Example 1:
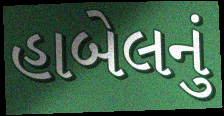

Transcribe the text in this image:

હાબેલનું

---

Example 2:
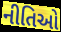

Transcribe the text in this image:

નીતિઓ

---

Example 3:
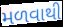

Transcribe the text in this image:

મળવાથી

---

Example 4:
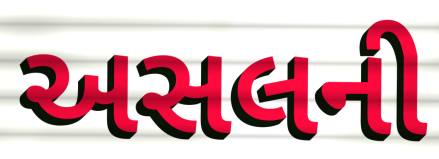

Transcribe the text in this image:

અસલની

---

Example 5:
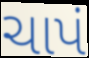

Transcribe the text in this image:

ચાપં